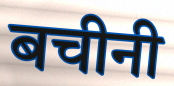
बचीनी